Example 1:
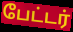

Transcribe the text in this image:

பேட்டர்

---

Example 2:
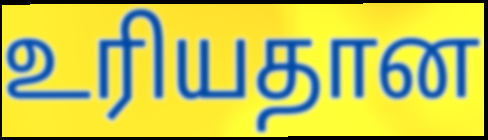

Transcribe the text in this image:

உரியதான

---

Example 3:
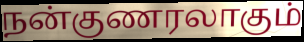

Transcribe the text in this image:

நன்குணரலாகும்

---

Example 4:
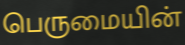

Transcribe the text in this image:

பெருமையின்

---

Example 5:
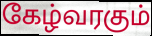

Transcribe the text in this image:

கேழ்வரகும்